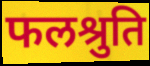
फलश्रुति